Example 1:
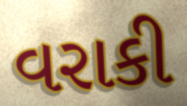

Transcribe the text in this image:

વરાકી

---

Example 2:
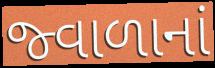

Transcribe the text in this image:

જ્વાળાનાં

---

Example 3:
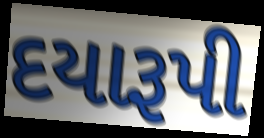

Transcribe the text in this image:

દયારૂપી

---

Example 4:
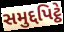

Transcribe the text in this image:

સમુદ્દપિટ્ઠે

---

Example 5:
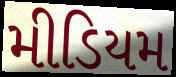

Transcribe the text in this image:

મીડિયમ